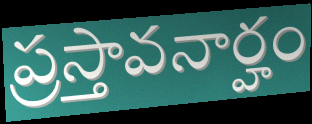
ప్రస్తావనార్హం